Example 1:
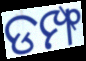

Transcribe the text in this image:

ଡମ୍ଫ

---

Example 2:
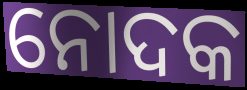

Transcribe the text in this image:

ନୋଦକ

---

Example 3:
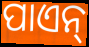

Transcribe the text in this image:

ପାଏନ୍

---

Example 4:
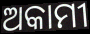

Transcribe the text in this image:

ଅକାମୀ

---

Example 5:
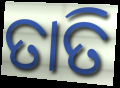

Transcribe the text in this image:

ତାତି